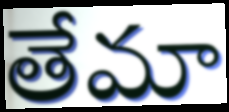
తేమా